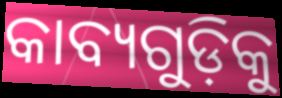
କାବ୍ୟଗୁଡ଼ିକୁ